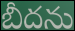
బీదను